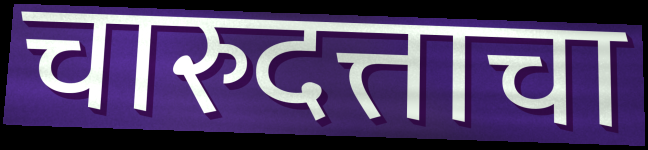
चारुदत्ताचा